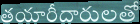
తయారీదారులతో